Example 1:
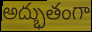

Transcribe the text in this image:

అద్భుతంగా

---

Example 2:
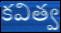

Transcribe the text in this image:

కవిత్వ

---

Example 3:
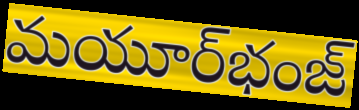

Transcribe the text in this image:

మయూర్‌భంజ్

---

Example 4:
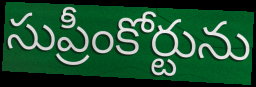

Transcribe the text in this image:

సుప్రీంకోర్టును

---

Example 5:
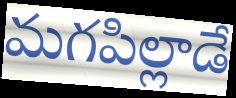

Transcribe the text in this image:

మగపిల్లాడే